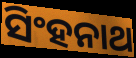
ସିଂହନାଥ